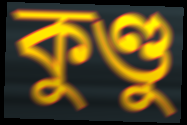
কুণ্ডু